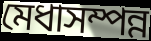
মেধাসম্পন্ন